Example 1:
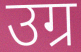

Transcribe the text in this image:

उग्र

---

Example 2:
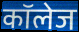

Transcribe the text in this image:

कॉलेज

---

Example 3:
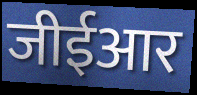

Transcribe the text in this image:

जीईआर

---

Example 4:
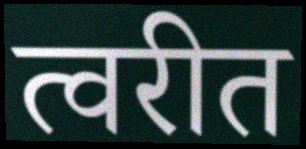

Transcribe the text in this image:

त्वरीत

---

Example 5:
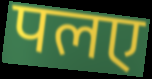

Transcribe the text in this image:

पलए